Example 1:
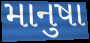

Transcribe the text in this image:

માનુષા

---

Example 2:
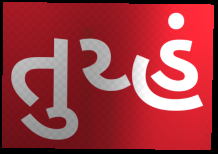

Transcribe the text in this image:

તુય્હં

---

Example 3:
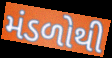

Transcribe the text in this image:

મંડળોથી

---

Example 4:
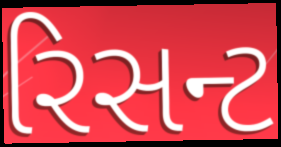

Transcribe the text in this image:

રિસન્ટ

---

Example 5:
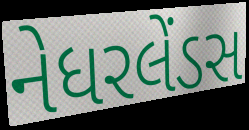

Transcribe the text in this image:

નેધરલેંડસ